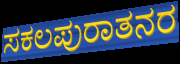
ಸಕಲಪುರಾತನರ